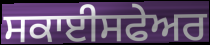
ਸਕਾਈਸਫੇਅਰ